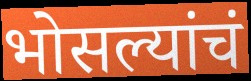
भोसल्यांचं